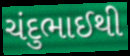
ચંદુભાઈથી